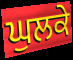
ਘੁਲਕੇ